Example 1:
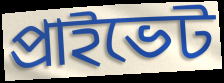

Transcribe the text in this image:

প্রাইভেট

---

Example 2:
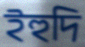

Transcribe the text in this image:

ইহুদি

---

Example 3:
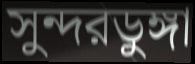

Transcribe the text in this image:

সুন্দরডুঙ্গা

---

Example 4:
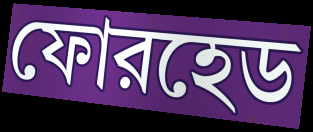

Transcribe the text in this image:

ফোরহেড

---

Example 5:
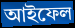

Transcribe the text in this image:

আইফেল